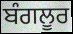
ਬੰਗਲੂਰ